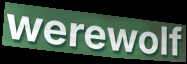
werewolf